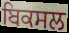
ਬਿਕਸਲ